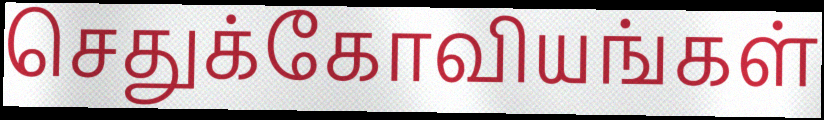
செதுக்கோவியங்கள்